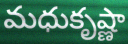
మధుకృష్ణా